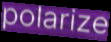
polarize